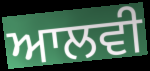
ਆਲਵੀ